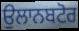
ਉਲਾਨਬਟੋਰ